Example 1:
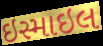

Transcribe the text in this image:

ઇસ્માઇલ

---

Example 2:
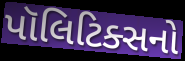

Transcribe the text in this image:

પૉલિટિક્સનો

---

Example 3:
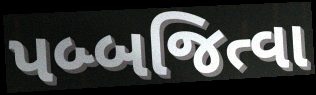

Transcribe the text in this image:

પબ્બજિત્વા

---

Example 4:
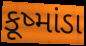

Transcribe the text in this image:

કૂષ્માંડા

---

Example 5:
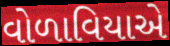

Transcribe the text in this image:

વોળાવિયાએ